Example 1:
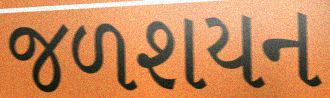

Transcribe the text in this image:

જળશયન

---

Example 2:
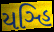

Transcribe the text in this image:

યઞ્હિ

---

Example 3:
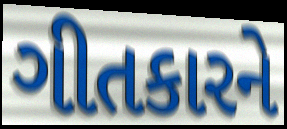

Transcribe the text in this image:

ગીતકારને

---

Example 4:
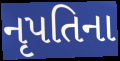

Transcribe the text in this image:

નૃપતિના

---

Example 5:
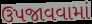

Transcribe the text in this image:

ઉપજાવવામાં